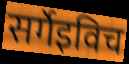
सर्गेइविच